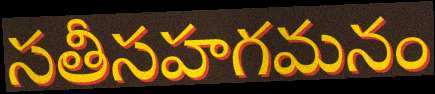
సతీసహగమనం